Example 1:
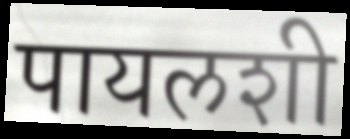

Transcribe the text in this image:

पायलशी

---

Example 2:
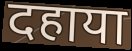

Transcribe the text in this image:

दहाया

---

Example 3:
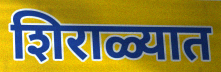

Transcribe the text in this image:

शिराळ्यात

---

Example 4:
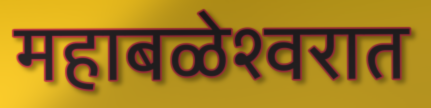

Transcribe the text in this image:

महाबळेश्वरात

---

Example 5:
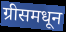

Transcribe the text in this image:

ग्रीसमधून